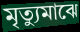
মৃত্যুমাঝে